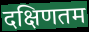
दक्षिणतम